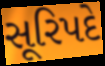
સૂરિપદે